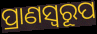
ପ୍ରାଣସ୍ୱରୂପ